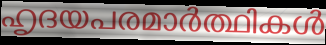
ഹൃദയപരമാർത്ഥികൾ